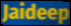
Jaideep